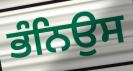
ਭੰਨਿਉਸ